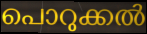
പൊറുക്കൽ